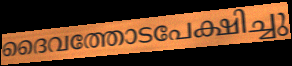
ദൈവത്തോടപേക്ഷിച്ചു